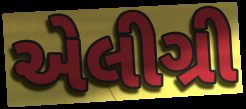
એલીગ્રી